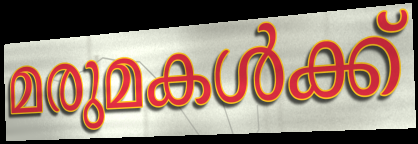
മരുമകൾക്ക്